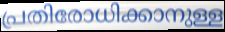
പ്രതിരോധിക്കാനുള്ള